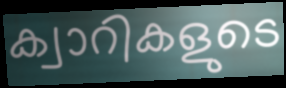
ക്വാറികളുടെ